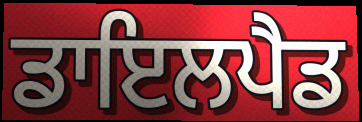
ਡਾਇਲਪੈਡ